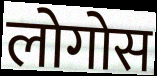
लोगोस